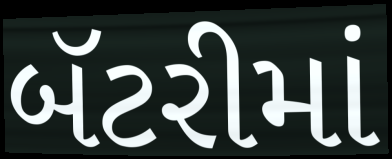
બૅટરીમાં